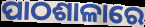
ପାଠଶାଳାରେ